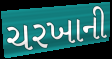
ચરખાની